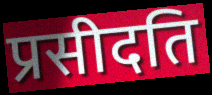
प्रसीदति